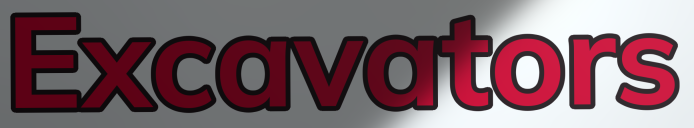
Excavators